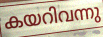
കയറിവന്നു